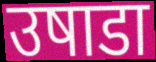
उषाडा